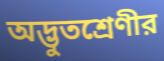
অদ্ভুতশ্রেণীর